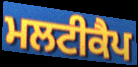
ਮਲਟੀਕੈਪ